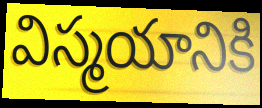
విస్మయానికి